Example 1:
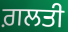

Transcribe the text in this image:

ਗ਼ਲਤੀ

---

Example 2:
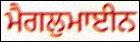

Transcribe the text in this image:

ਮੈਗਲੁਮਾਈਨ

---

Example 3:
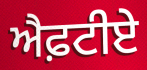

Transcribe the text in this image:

ਐਫ਼ਟੀਏ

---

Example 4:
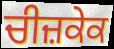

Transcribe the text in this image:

ਚੀਜ਼ਕੇਕ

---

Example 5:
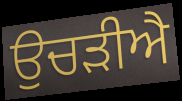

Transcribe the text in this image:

ਉਚੜੀਐ